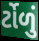
ર્ટોળું